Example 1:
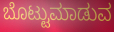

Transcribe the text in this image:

ಬೊಟ್ಟುಮಾಡುವ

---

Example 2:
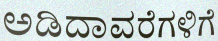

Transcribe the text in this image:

ಅಡಿದಾವರೆಗಳಿಗೆ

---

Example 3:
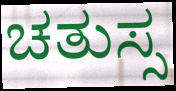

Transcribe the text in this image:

ಚತುಸ್ಸ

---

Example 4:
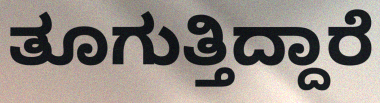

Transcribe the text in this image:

ತೂಗುತ್ತಿದ್ದಾರೆ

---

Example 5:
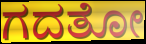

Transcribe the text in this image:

ಗದತೋ